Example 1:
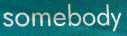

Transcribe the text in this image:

somebody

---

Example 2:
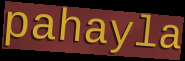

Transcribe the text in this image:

pahayla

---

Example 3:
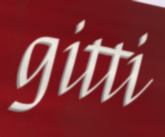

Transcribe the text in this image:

gitti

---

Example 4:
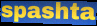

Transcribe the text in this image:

spashta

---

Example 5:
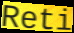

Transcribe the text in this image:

Reti